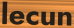
lecun